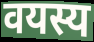
वयस्य